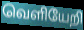
வெளியேறி